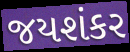
જયશંકર